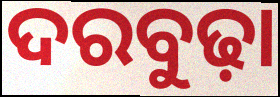
ଦରବୁଢ଼ା